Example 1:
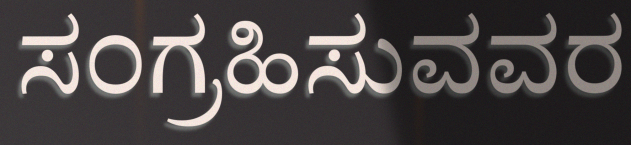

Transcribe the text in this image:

ಸಂಗ್ರಹಿಸುವವರ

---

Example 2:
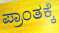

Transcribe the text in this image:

ಪ್ರಾಂತಕ್ಕೆ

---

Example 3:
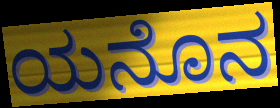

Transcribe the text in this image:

ಯನೊನ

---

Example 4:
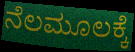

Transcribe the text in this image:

ನೆಲಮೂಲಕ್ಕೆ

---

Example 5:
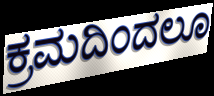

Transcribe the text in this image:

ಕ್ರಮದಿಂದಲೂ